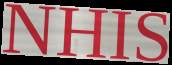
NHIS